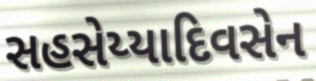
સહસેય્યાદિવસેન